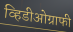
व्हिडीओग्राफी